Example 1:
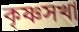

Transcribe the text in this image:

কৃষ্ণসখা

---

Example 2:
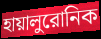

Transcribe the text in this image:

হায়ালুরোনিক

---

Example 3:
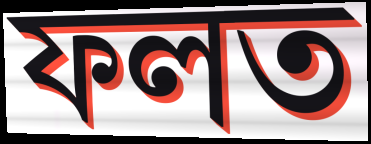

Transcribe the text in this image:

ফলত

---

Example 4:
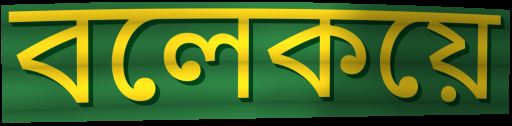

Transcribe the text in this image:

বলেকয়ে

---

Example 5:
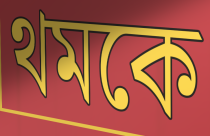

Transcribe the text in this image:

থমকে